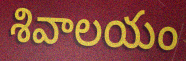
శివాలయం